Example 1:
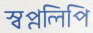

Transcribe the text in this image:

স্বপ্নলিপি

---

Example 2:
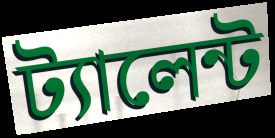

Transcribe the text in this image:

ট্যালেন্ট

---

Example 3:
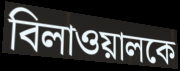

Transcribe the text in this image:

বিলাওয়ালকে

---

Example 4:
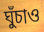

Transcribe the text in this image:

ঘুঁচাও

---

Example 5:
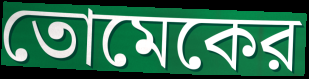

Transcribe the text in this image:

তোমেকের